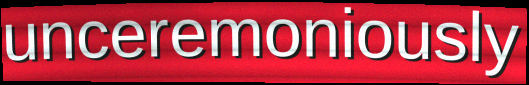
unceremoniously